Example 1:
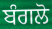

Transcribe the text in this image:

ਬੰਗਲੋ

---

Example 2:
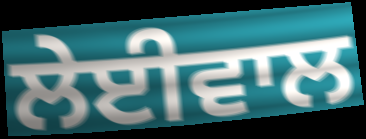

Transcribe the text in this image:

ਲੇਈਵਾਲ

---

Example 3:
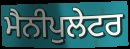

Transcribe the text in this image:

ਮੈਨੀਪੁਲੇਟਰ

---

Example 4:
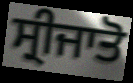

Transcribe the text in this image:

ਸ੍ਰੀਜਾਤੋ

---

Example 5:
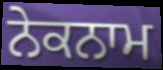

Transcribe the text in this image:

ਨੇਕਨਾਮ